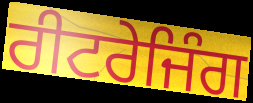
ਰੀਟਰੇਜਿੰਗ